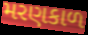
મરણકાળ